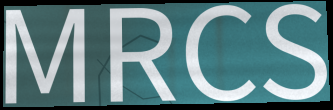
MRCS